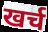
खर्च